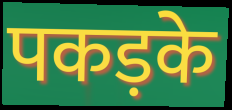
पकड़के